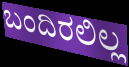
ಬಂದಿರಲಿಲ್ಲ